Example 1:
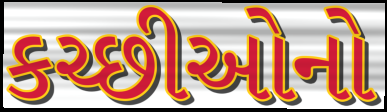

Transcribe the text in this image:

કચ્છીઓનો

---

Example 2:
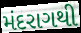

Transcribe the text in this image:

મંદરાગથી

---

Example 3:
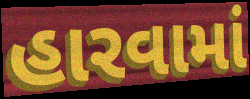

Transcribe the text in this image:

હારવામાં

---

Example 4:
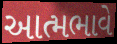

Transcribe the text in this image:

આત્મભાવે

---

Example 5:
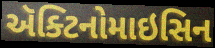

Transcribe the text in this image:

ઍક્ટિનોમાઇસિન